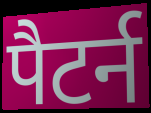
पैटर्न